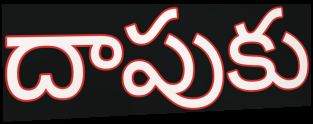
దాపుకు